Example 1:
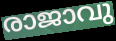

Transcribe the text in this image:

രാജാവു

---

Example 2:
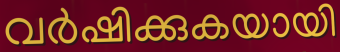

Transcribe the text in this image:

വർഷിക്കുകയായി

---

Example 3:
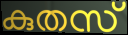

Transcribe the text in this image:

കുതസ്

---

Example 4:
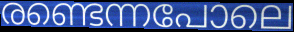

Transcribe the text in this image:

രണ്ടെന്നപോലെ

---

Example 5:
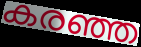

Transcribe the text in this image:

കരഞ്ഞ